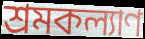
শ্রমকল্যাণ